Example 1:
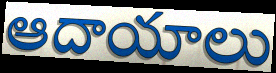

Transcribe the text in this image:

ఆదాయాలు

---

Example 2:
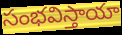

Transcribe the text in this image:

సంభవిస్తాయా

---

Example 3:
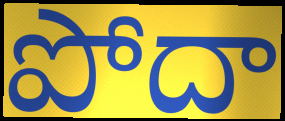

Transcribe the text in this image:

పోదా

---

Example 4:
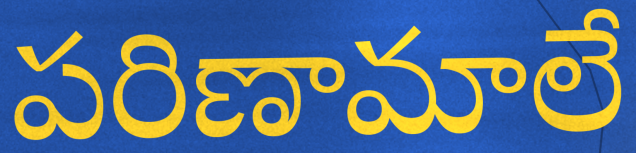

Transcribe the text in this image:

పరిణామాలే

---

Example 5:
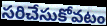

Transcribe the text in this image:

సరిచేసుకోవటం